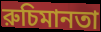
রুচিমানতা